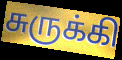
சுருக்கி